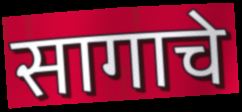
सागाचे